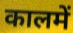
कालमें